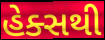
હેક્સથી